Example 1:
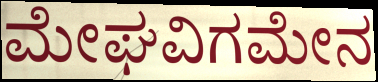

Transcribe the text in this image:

ಮೇಘವಿಗಮೇನ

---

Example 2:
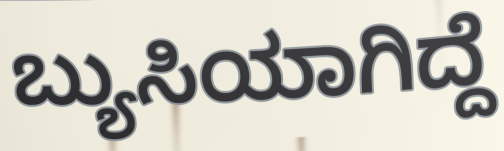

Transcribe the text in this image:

ಬ್ಯುಸಿಯಾಗಿದ್ದೆ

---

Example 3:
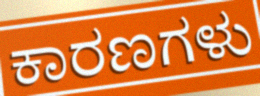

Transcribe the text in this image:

ಕಾರಣಗಳು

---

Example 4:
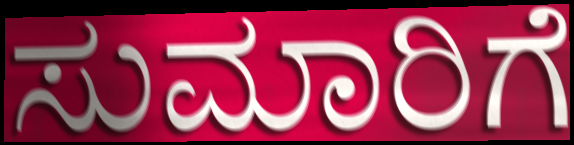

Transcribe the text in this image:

ಸುಮಾರಿಗೆ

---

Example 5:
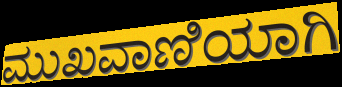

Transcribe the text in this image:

ಮುಖವಾಣಿಯಾಗಿ